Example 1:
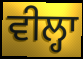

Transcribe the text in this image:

ਵੀਲ੍ਹਾ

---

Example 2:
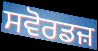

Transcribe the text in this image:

ਸਵੋਰਡਜ਼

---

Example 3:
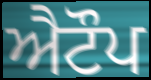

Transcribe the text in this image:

ਐਟੌਪ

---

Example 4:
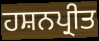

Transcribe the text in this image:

ਹਸ਼ਨਪ੍ਰੀਤ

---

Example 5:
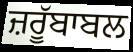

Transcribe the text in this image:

ਜ਼ਰੂੱਬਾਬਲ